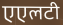
एएलटी